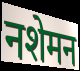
नशेमन